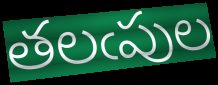
తలఁపుల